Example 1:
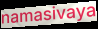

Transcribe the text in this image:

namasivaya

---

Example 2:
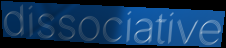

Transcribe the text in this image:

dissociative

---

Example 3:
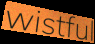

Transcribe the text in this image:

wistful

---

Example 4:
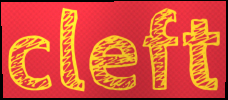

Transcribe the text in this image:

cleft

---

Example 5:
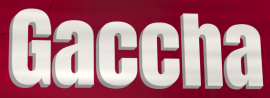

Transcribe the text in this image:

Gaccha